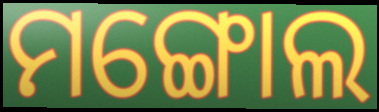
ମଙ୍ଗୋଲ